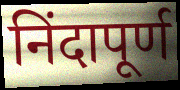
निंदापूर्ण